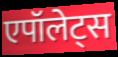
एपॉलेट्स